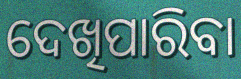
ଦେଖିପାରିବା